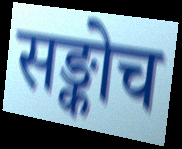
सङ्कोच